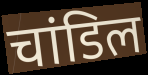
चांडिल